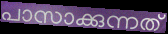
പാസാക്കുന്നത്